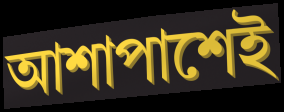
আশাপাশেই